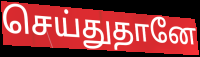
செய்துதானே